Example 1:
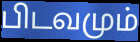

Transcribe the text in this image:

பிடவமும்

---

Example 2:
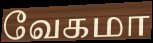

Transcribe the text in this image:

வேகமா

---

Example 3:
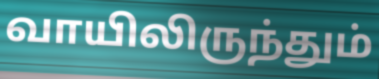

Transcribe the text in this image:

வாயிலிருந்தும்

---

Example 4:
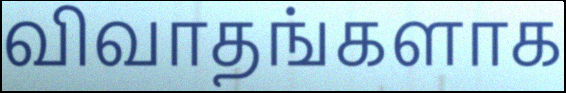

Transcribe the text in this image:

விவாதங்களாக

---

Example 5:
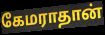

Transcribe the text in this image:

கேமராதான்